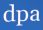
dpa